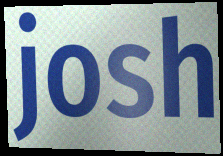
josh